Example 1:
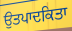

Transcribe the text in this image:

ਉਤਪਾਦਕਿਤਾ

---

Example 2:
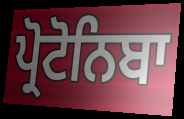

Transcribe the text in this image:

ਪ੍ਰੋਟੋਨਿਬਾ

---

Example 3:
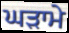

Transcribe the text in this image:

ਘੜਾਮੇ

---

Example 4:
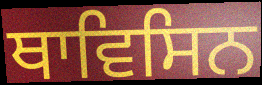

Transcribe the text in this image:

ਥਾਵਿਸਿਨ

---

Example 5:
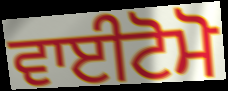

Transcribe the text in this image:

ਵਾਈਟੋਮੋ